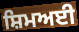
ਸ਼ਿਮਅਈ